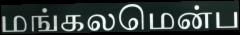
மங்கலமென்ப